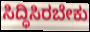
ಸಿದ್ಧಿಸಿರಬೇಕು